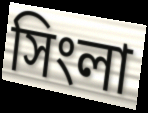
সিংলা